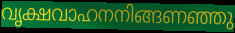
വൃക്ഷവാഹനനിങ്ങണഞ്ഞു